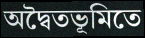
অদ্বৈতভূমিতে